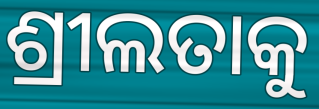
ଶ୍ରୀଲତାକୁ